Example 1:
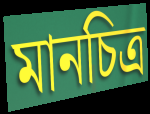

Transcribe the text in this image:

মানচিত্ৰ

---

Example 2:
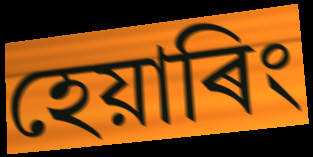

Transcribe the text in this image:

হেয়াৰিং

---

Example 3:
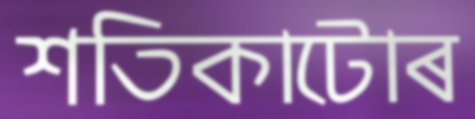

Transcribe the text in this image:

শতিকাটোৰ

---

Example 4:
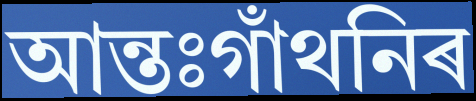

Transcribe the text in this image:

আন্তঃগাঁথনিৰ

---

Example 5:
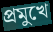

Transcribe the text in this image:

প্ৰমুখে